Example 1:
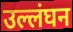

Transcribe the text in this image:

उल्लंघन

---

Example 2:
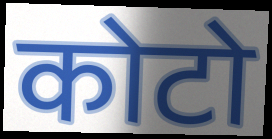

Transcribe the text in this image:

कोटो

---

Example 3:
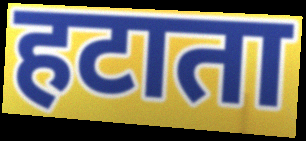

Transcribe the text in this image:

हटाता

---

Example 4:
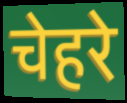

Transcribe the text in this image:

चेहरे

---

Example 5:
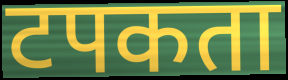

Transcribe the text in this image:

टपकता